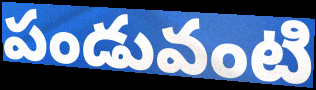
పండువంటి